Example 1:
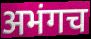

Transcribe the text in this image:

अभंगच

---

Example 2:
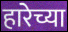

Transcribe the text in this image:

हारेच्या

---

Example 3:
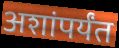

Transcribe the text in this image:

अशांपर्यंत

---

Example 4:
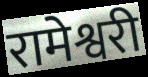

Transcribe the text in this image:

रामेश्वरी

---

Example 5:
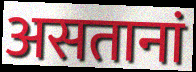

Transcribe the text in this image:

असतानां